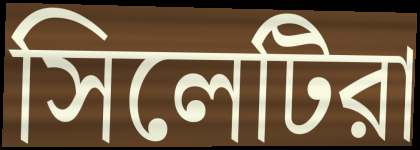
সিলেটিরা